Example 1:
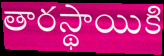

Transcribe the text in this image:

తారస్థాయికి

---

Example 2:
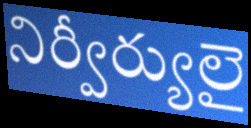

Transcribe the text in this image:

నిర్వీర్యులై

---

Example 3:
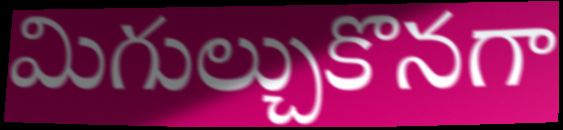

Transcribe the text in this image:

మిగుల్చుకొనగా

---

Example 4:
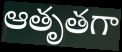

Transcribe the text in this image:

ఆతృతగా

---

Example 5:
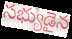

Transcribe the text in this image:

సభ్యుడైన